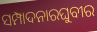
ସମ୍ପାଦନାରଘୁବୀର